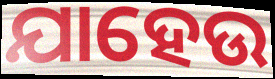
ଯାହେଉ